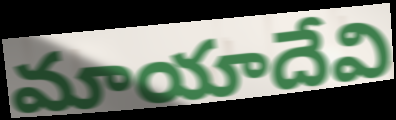
మాయాదేవి